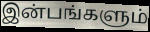
இன்பங்களும்